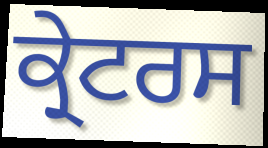
ਕ੍ਰੇਟਰਸ